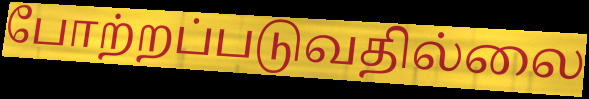
போற்றப்படுவதில்லை